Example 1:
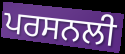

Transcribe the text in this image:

ਪਰਸਨਲੀ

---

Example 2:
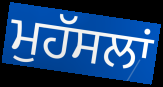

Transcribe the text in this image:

ਮੁਹੱਸਲਾਂ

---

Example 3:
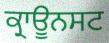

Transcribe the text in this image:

ਕ੍ਰਾਊਨਸਟ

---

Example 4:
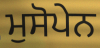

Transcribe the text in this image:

ਮੁਸੋਪੇਨ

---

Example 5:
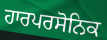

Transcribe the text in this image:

ਹਾਰਪਰਸੋਨਿਕ